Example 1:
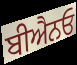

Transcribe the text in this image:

ਬੀਐਨਓ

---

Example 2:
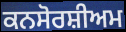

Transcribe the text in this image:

ਕਨਸੋਰਸ਼ੀਅਮ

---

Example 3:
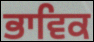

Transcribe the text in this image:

ਭਾਵਿਕ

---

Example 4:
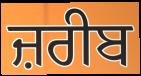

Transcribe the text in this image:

ਜ਼ਰੀਬ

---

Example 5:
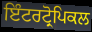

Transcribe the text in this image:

ਇੰਟਰਟ੍ਰੋਪਿਕਲ